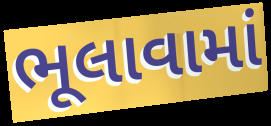
ભૂલાવામાં